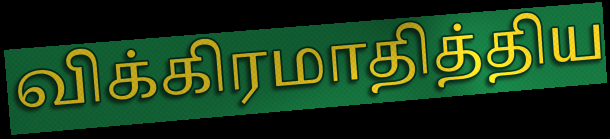
விக்கிரமாதித்திய